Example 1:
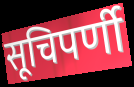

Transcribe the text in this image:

सूचिपर्णी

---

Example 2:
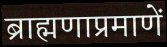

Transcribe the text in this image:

ब्राह्मणाप्रमाणें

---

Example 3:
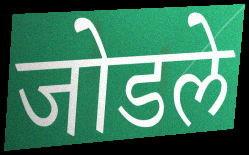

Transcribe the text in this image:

जोडले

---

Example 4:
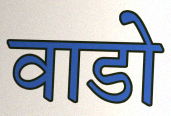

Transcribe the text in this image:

वाडो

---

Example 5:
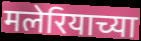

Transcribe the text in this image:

मलेरियाच्या